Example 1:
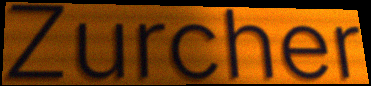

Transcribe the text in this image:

Zurcher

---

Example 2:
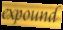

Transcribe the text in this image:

expound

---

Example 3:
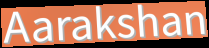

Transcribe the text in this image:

Aarakshan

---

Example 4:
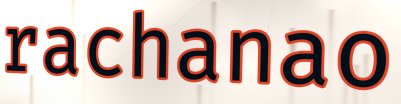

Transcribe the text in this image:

rachanao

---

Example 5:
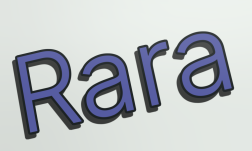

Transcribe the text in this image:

Rara